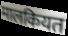
मालकियत